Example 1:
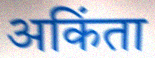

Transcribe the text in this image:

अकिंता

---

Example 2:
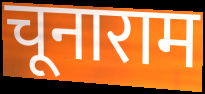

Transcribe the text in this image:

चूनाराम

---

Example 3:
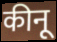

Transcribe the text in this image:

कीनू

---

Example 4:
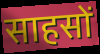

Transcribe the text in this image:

साहसों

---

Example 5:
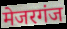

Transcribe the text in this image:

मेजरगंज